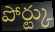
పోర్ట్కు